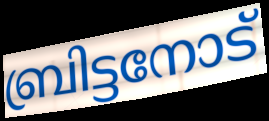
ബ്രിട്ടനോട്